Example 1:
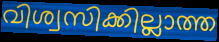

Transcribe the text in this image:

വിശ്വസിക്കില്ലാത്ത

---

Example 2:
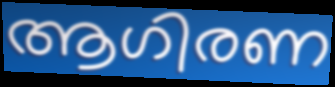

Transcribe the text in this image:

ആഗിരണ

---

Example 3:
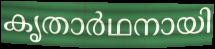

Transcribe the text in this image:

കൃതാർഥനായി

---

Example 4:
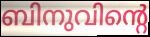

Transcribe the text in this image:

ബിനുവിന്റെ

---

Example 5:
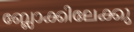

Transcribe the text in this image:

ബ്ലോക്കിലേക്കു